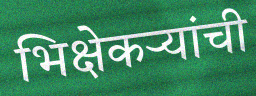
भिक्षेकऱ्यांची